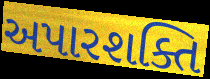
અપારશક્તિ